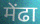
मेंढा